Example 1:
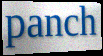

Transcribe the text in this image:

panch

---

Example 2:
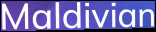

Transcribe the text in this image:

Maldivian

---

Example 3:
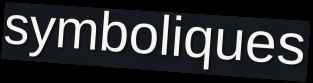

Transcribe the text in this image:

symboliques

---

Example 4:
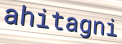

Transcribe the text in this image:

ahitagni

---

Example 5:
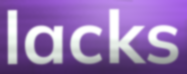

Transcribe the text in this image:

lacks